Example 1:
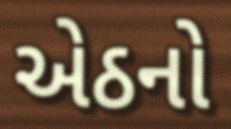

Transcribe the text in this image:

એઠનો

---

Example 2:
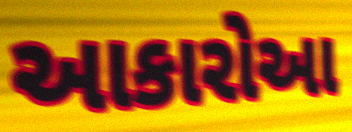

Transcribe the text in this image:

આકારોઆ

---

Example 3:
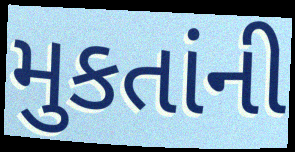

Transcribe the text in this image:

મુકતાંની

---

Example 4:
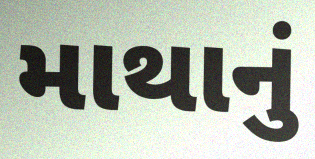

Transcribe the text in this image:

માથાનું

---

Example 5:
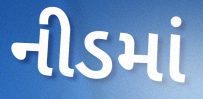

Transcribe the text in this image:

નીડમાં